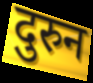
दुरुन